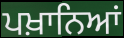
ਪਖ਼ਾਨਿਆਂ